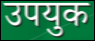
उपयुक